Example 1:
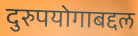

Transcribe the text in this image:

दुरुपयोगाबद्दल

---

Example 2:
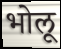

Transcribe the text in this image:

भोलू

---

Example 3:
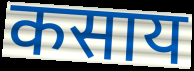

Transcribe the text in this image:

कसाय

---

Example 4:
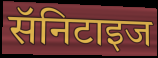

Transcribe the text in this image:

सॅनिटाइज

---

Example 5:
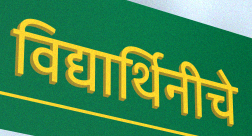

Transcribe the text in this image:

विद्यार्थिनीचे